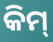
କିମ୍